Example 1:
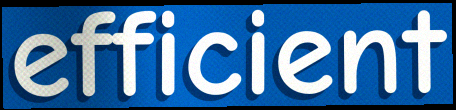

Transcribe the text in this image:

efficient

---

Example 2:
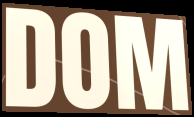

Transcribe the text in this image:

DOM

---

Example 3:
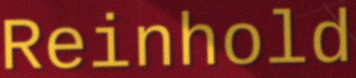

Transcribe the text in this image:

Reinhold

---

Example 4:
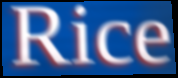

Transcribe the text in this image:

Rice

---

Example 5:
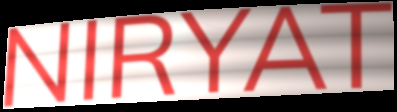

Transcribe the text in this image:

NIRYAT